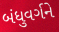
બંધુવર્ગને